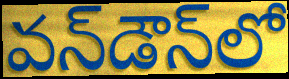
వన్‌డౌన్‌లో